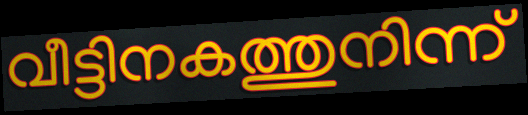
വീട്ടിനകത്തുനിന്ന്